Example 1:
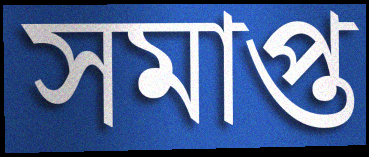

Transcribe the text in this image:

সমাপ্ত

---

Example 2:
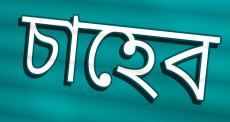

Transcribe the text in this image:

চাহেব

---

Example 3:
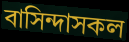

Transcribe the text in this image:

বাসিন্দাসকল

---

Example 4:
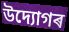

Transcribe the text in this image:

উদ্যোগৰ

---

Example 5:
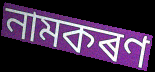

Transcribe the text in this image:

নামকৰণ